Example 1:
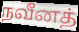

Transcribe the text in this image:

நவீனத்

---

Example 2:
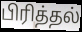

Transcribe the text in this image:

பிரித்தல்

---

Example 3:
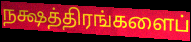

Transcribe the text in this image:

நக்ஷத்திரங்களைப்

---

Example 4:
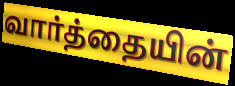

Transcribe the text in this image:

வார்த்தையின்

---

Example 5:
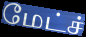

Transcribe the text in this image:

மேட்ச்